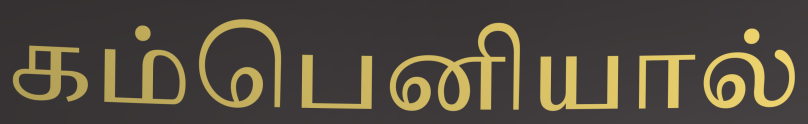
கம்பெனியால்